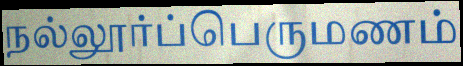
நல்லூர்ப்பெருமணம்